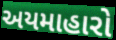
અયમાહારો